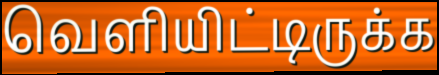
வெளியிட்டிருக்க